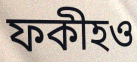
ফকীহও